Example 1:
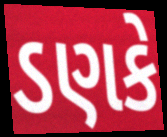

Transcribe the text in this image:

ડણકે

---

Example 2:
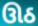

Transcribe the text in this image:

ઊઠ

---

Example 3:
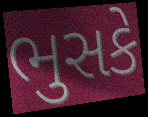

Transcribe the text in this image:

ભુસકે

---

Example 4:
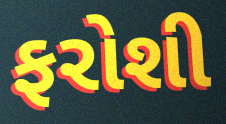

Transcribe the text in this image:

ફરોશી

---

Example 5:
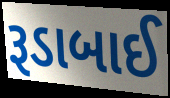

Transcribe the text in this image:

રૂડાબાઈ